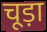
चूड़ा